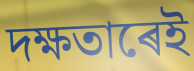
দক্ষতাৰেই